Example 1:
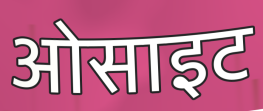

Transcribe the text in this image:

ओसाइट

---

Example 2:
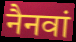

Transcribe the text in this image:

नैनवां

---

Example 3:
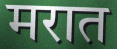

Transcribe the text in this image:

मरात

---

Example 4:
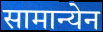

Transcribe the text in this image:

सामान्येन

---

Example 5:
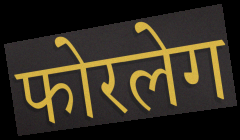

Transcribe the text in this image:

फोरलेग